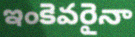
ఇంకెవరైనా